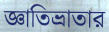
জ্ঞাতিভ্রাতার